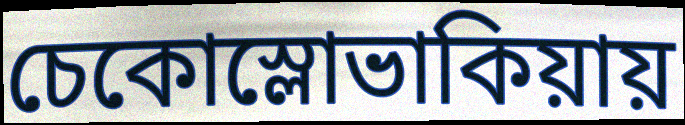
চেকোস্লোভাকিয়ায়